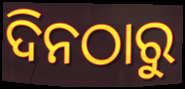
ଦିନଠାରୁ